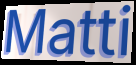
Matti